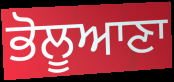
ਭੋਲੂਆਣਾ